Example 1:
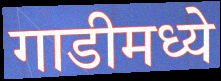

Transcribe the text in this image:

गाडीमध्ये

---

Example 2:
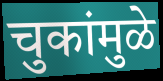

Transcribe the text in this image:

चुकांमुळे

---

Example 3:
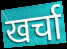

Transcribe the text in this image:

खर्चा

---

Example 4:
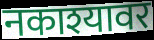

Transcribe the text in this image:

नकाश्यावर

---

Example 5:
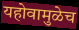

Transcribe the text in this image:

यहोवामुळेच